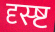
दृस्ष्ट